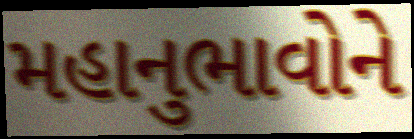
મહાનુભાવોને